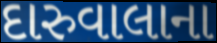
દારુવાલાના